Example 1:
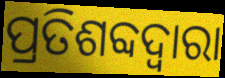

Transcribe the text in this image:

ପ୍ରତିଶବ୍ଦଦ୍ୱାରା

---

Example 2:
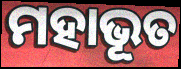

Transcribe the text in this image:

ମହାଭୂତ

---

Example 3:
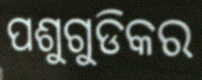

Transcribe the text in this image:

ପଶୁଗୁଡିକର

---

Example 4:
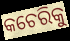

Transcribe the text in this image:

କଚେରିକୁ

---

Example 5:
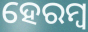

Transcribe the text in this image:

ହେରମ୍ୱ